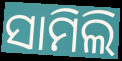
ସାମିଲି